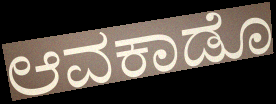
ಆವಕಾಡೊ